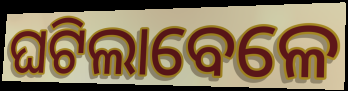
ଘଟିଲାବେଳେ